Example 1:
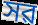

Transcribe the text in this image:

সৱ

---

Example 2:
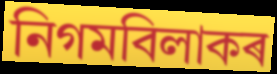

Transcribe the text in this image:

নিগমবিলাকৰ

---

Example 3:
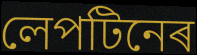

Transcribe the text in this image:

লেপটিনেৰ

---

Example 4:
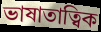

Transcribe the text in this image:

ভাষাতাত্বিক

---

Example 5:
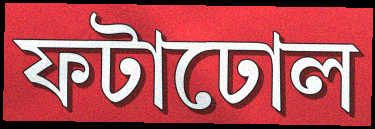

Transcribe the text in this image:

ফটাঢোল